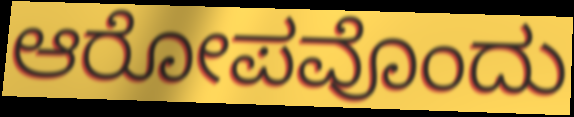
ಆರೋಪವೊಂದು